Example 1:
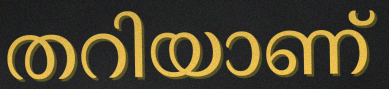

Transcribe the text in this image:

തറിയാണ്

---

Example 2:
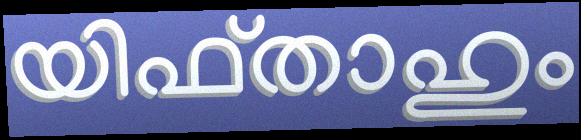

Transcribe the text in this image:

യിഫ്താഹും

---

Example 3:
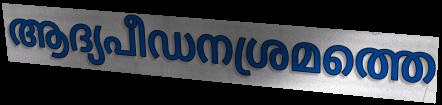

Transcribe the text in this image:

ആദ്യപീഡനശ്രമത്തെ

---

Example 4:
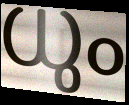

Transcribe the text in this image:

ധും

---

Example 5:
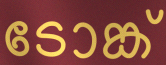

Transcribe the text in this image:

ടോങ്ക്